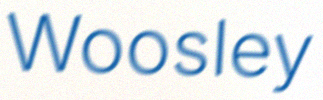
Woosley